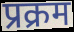
प्रक्रम